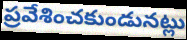
ప్రవేశించకుండునట్లు